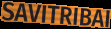
SAVITRIBAI